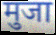
मुजा